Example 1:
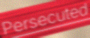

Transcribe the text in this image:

Persecuted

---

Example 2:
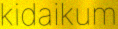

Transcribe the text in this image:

kidaikum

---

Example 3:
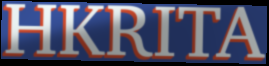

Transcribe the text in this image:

HKRITA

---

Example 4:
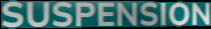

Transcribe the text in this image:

SUSPENSION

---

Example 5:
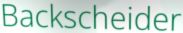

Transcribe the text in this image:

Backscheider